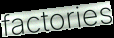
factories